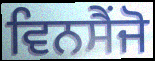
ਵਿਨਸੈਂਜੋ